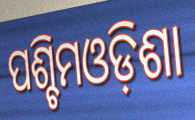
ପଶ୍ଚିମଓଡ଼ିଶା